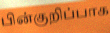
பின்குறிப்பாக